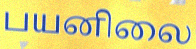
பயனிலை